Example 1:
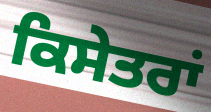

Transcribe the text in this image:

ਕਿਸੇਤਰਾਂ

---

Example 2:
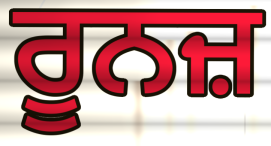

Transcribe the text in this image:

ਰੂਨਜ਼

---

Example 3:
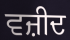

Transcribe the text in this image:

ਵਜ਼ੀਦ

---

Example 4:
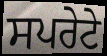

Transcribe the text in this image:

ਸਪਰੇਟੇ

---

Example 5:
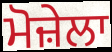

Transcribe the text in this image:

ਮੋਜ਼ੇਲਾ